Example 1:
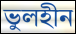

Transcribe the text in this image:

ভুলহীন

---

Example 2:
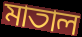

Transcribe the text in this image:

মাতাল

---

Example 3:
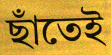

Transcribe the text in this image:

ছাঁতেই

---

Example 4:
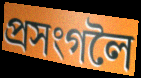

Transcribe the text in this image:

প্ৰসংগলৈ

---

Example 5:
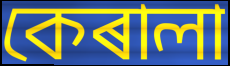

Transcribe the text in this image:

কেৰালা